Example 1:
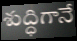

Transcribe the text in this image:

శుద్ధిగానే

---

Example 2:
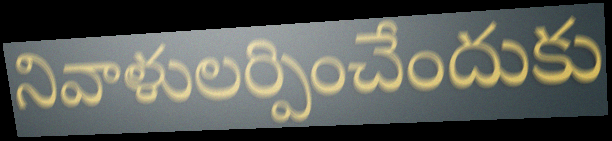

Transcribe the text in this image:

నివాళులర్పించేందుకు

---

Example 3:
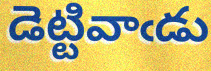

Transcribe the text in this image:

డెట్టివాఁడు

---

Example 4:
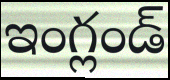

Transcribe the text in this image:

ఇంగ్లండ్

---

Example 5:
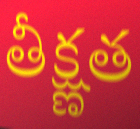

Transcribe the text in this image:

తీక్ష్ణత